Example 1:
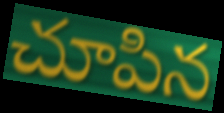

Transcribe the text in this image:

చూపిన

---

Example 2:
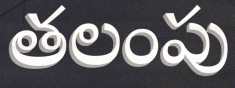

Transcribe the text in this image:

తలంపు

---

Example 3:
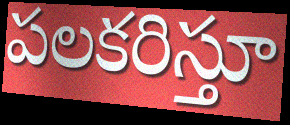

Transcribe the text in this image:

పలకరిస్తూ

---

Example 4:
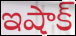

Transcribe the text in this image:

ఇషాక్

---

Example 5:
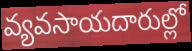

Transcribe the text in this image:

వ్యవసాయదారుల్లో